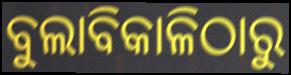
ବୁଲାବିକାଳିଠାରୁ